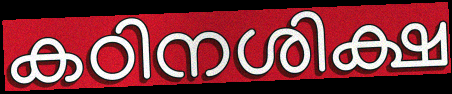
കഠിനശിക്ഷ